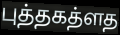
புத்தகத்ளத